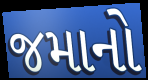
જમાનો